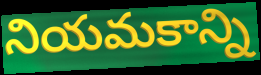
నియమకాన్ని